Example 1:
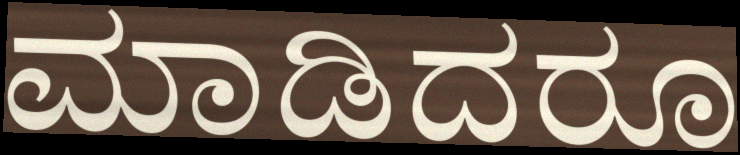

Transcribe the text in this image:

ಮಾಡಿದರೂ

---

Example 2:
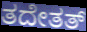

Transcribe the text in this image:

ತದೇತತ್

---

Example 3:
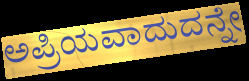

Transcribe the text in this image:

ಅಪ್ರಿಯವಾದುದನ್ನೇ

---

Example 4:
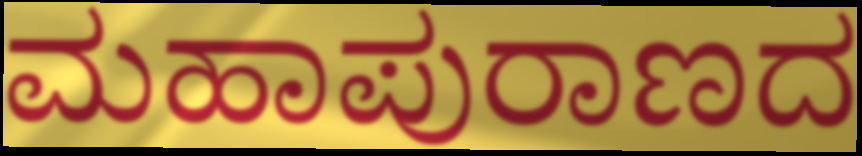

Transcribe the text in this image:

ಮಹಾಪುರಾಣದ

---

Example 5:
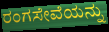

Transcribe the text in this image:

ರಂಗಸೇವೆಯನ್ನು